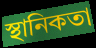
স্থানিকতা